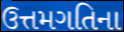
ઉત્તમગતિના